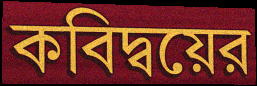
কবিদ্বয়ের